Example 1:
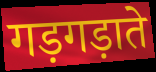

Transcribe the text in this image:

गड़गड़ाते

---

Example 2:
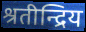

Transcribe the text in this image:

श्रतीन्द्रिय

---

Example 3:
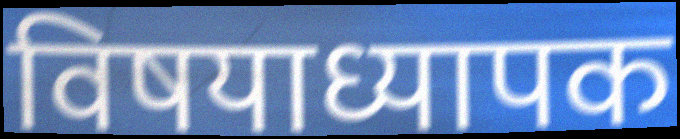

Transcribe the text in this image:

विषयाध्यापक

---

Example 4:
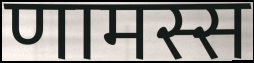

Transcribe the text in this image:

णामस्स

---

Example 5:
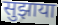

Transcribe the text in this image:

सुझाया